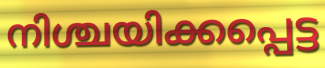
നിശ്ചയിക്കപ്പെട്ട